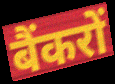
बैंकरों